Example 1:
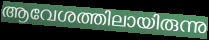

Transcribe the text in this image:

ആവേശത്തിലായിരുന്നു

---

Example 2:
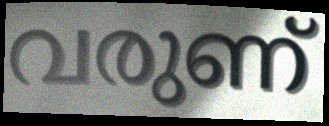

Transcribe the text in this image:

വരുണ്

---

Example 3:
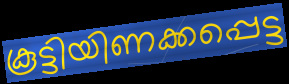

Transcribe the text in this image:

കൂട്ടിയിണക്കപ്പെട്ട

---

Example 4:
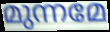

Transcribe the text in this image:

മുന്നമേ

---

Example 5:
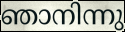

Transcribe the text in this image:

ഞാനിന്നു